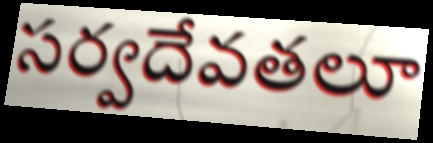
సర్వదేవతలూ